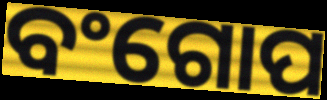
ବଂଗୋପ